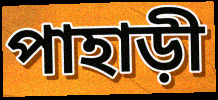
পাহাড়ী